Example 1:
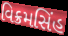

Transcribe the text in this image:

વિક્રમસિંહ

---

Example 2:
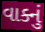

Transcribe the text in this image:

વાક્નું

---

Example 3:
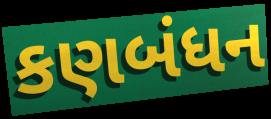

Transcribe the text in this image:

કણબંધન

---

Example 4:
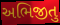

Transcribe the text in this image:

અભિજીતુ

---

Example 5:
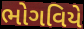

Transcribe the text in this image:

ભોગવિયે